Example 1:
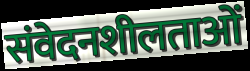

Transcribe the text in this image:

संवेदनशीलताओं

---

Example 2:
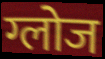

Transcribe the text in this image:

ग्लोज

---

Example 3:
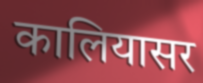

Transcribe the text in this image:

कालियासर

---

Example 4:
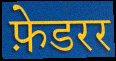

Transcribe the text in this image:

फ़ेडरर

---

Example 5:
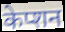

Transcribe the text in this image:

केप्शन